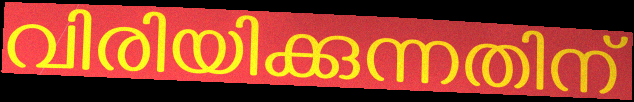
വിരിയിക്കുന്നതിന്